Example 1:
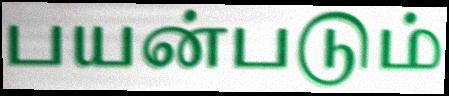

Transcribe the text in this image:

பயன்படும்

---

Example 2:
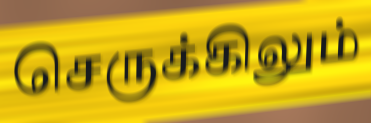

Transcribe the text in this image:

செருக்கிலும்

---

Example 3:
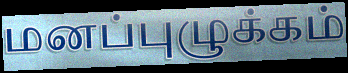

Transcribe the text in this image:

மனப்புழுக்கம்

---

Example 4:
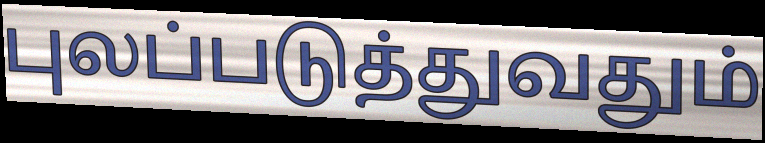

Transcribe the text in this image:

புலப்படுத்துவதும்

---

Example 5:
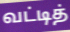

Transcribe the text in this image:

வட்டித்